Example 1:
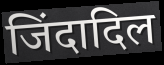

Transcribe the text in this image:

जिंदादिल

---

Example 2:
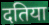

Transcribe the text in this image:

दतिया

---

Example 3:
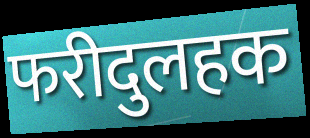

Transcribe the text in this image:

फरीदुलहक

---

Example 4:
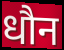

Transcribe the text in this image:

धौन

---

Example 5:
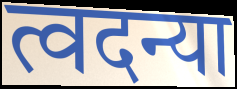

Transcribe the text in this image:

त्वदन्या